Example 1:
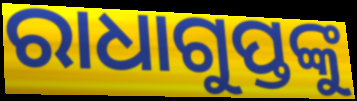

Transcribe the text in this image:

ରାଧାଗୁପ୍ତଙ୍କୁ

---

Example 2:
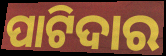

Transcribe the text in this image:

ପାଟିଦାର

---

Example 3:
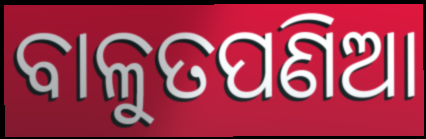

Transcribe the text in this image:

ବାଳୁତପଣିଆ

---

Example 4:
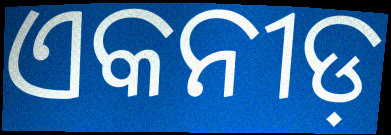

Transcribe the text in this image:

ଏକନୀଡ଼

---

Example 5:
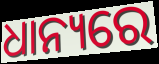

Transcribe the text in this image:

ଧାନ୍ୟରେ